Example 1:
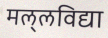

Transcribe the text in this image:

मल्लविद्या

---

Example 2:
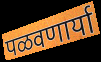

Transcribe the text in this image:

पळवणार्या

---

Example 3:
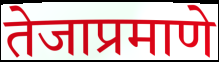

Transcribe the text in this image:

तेजाप्रमाणे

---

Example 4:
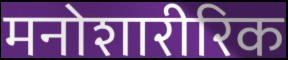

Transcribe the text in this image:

मनोशारीरिक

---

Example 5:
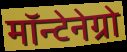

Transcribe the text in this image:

मॉन्टेनेग्रो